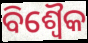
ବିଶ୍ୱୈକ